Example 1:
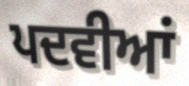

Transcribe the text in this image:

ਪਦਵੀਆਂ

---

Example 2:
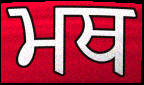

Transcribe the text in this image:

ਮਥ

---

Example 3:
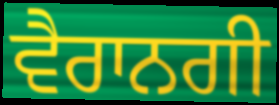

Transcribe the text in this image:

ਵੈਰਾਨਗੀ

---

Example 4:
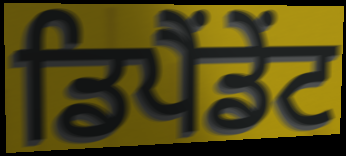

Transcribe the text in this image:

ਡਿਪੈਂਡੇਂਟ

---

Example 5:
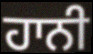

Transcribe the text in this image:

ਹਾਨੀ